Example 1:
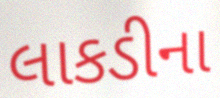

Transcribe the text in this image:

લાકડીના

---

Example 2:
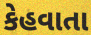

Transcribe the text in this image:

કેહવાતા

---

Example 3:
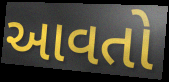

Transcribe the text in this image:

આવતો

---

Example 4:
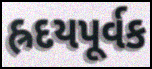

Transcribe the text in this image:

હ્રદયપૂર્વક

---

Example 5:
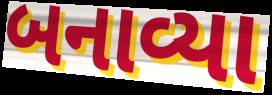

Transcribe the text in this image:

બનાવ્યા